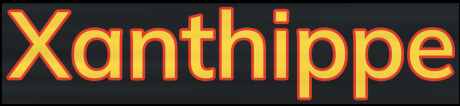
Xanthippe